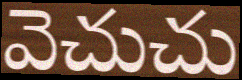
వెచుచు